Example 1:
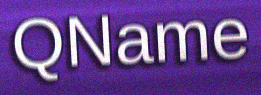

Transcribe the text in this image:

QName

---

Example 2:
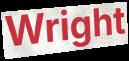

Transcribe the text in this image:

Wright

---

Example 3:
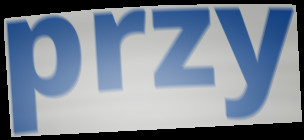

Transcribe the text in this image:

przy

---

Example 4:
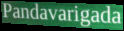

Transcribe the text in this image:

Pandavarigada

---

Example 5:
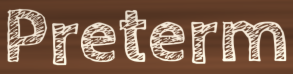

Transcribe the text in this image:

Preterm